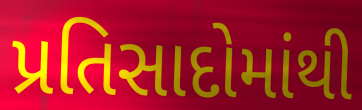
પ્રતિસાદોમાંથી